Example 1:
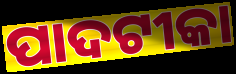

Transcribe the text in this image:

ପାଦଟୀକା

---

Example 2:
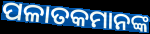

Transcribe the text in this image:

ପଳାତକମାନଙ୍କ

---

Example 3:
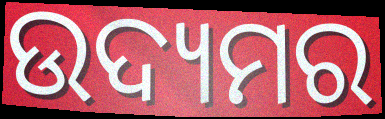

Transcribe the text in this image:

ଉଦ୍ୟମର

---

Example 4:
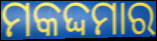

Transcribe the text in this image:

ମକଦ୍ଦମାର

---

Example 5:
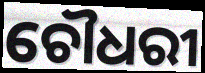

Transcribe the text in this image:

ଚୌଧରୀ